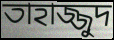
তাহাজ্জুদ